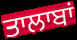
ਤਾਲਾਬਾਂ